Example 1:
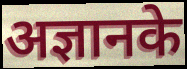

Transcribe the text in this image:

अज्ञानके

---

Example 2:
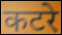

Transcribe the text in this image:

कटरे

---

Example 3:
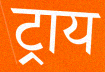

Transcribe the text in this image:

ट्राय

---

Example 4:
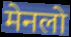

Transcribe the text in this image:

मेनलो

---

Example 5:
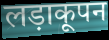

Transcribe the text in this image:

लड़ाकूपन